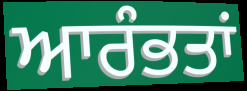
ਆਰੰਭਤਾਂ